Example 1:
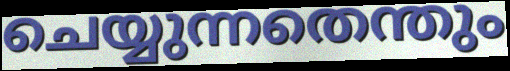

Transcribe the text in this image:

ചെയ്യുന്നതെന്തും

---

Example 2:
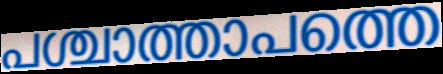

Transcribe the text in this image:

പശ്ചാത്താപത്തെ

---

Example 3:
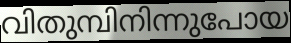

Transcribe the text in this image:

വിതുമ്പിനിന്നുപോയ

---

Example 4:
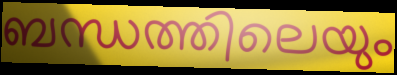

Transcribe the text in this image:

ബന്ധത്തിലെയും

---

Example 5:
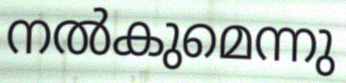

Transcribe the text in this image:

നൽകുമെന്നു